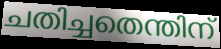
ചതിച്ചതെന്തിന്